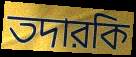
তদারকি